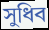
সুধিব